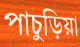
পাচুড়িয়া